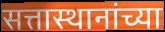
सत्तास्थानांच्या